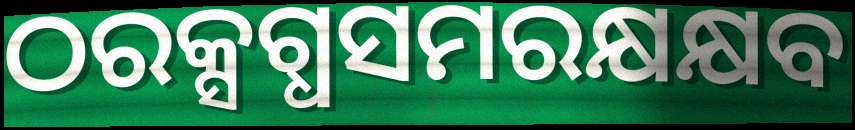
ଠରକ୍ସଗ୍ଧସମରକ୍ଷକ୍ଷବ